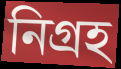
নিগ্রহ